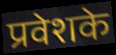
प्रवेशके